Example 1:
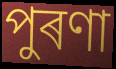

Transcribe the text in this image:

পুৰণা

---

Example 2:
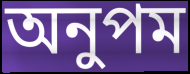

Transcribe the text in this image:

অনুপম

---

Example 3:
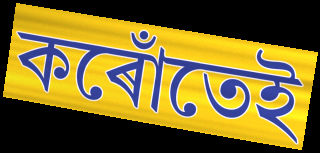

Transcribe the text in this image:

কৰোঁতেই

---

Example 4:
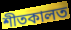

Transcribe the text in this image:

শীতকালত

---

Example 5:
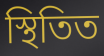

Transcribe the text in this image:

স্থিতিত